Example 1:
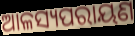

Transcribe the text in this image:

ଆଳସ୍ୟପରାୟଣ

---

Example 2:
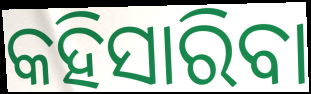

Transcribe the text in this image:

କହିସାରିବା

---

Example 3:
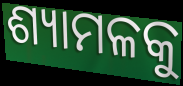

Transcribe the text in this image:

ଶ୍ୟାମଳକୁ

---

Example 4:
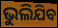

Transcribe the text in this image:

ଭୁଲିଯିବ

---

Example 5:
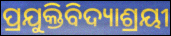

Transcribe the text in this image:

ପ୍ରଯୁକ୍ତିବିଦ୍ୟାଶ୍ରୟୀ